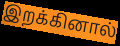
இறக்கினால்